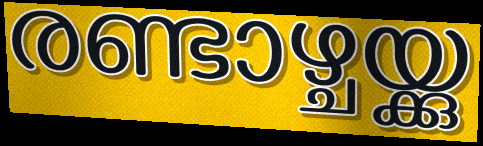
രണ്ടാഴ്ചയ്ക്കു